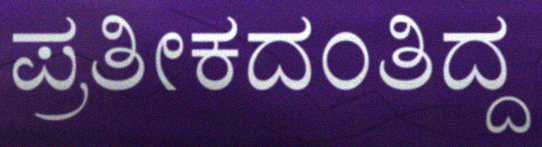
ಪ್ರತೀಕದಂತಿದ್ದ